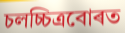
চলচ্চিত্ৰবোৰত